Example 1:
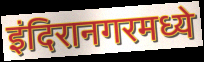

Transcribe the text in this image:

इंदिरानगरमध्ये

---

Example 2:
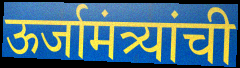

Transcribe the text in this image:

ऊर्जामंत्र्यांची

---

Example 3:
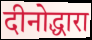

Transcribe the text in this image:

दीनोद्धारा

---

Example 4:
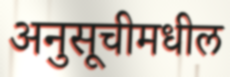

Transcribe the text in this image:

अनुसूचीमधील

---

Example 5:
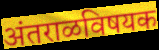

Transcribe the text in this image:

अंतराळविषयक